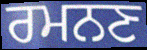
ਰਮਨਣ